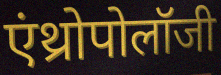
एंथ्रोपोलॉजी